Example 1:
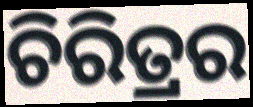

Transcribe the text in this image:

ଚିରିତ୍ରର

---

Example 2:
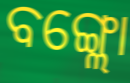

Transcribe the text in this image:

ବଙ୍ଗ୍ଲୋ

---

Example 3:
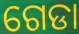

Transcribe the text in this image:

ଗେଡା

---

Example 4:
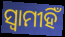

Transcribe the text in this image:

ସ୍ଵାମୀହିଁ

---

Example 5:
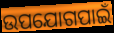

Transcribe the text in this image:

ଉପଯୋଗପାଇଁ